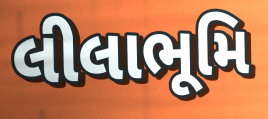
લીલાભૂમિ